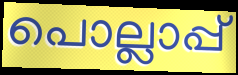
പൊല്ലാപ്പ്